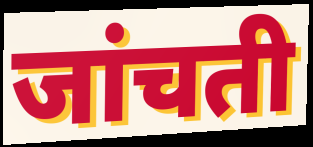
जांचती